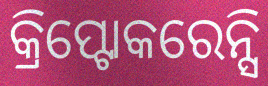
କ୍ରିପ୍ଟୋକରେନ୍ସି